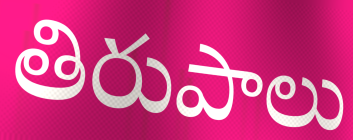
తిరుపాలు